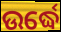
ଉର୍ଦ୍ଧେ